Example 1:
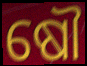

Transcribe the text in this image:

ଷୌ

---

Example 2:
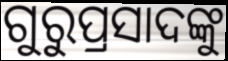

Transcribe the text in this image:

ଗୁରୁପ୍ରସାଦଙ୍କୁ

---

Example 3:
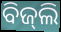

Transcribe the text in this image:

ବିଜ୍‍ଲି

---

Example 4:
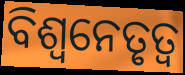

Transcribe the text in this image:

ବିଶ୍ୱନେତୃତ୍ୱ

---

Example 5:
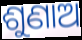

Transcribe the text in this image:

ଶୁଣାଅ